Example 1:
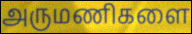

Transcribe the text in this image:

அருமணிகளை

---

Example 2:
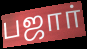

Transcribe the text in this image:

பஜார்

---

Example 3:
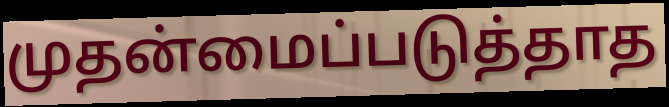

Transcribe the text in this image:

முதன்மைப்படுத்தாத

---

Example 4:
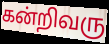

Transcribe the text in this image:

கன்றிவரு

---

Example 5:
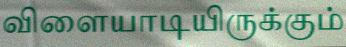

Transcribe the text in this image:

விளையாடியிருக்கும்